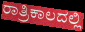
ರಾತ್ರಿಕಾಲದಲ್ಲಿ